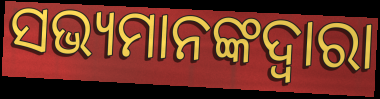
ସଭ୍ୟମାନଙ୍କଦ୍ୱାରା